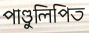
পাণ্ডুলিপিত